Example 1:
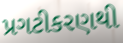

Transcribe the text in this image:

પ્રગટીકરણથી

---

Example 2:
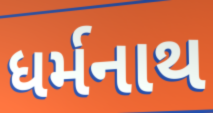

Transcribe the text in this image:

ધર્મનાથ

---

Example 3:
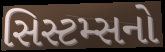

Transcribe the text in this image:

સિસ્ટમ્સનો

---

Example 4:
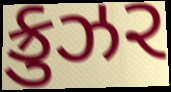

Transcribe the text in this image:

ક્રુઝર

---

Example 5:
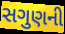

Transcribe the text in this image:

સગુણની